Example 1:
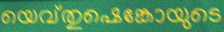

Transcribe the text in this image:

യെവ്തുഷെങ്കോയുടെ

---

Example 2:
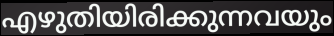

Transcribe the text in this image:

എഴുതിയിരിക്കുന്നവയും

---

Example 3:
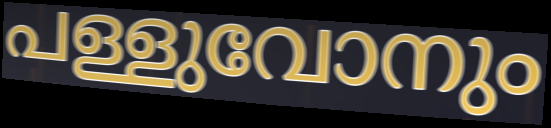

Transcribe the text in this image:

പള്ളുവോനും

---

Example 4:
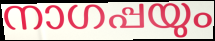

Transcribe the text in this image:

നാഗപ്പയും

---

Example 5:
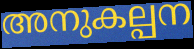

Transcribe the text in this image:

അനുകല്പന